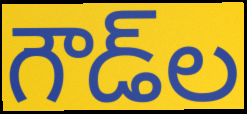
గౌడ్‌ల